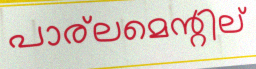
പാര്ലമെന്റില്